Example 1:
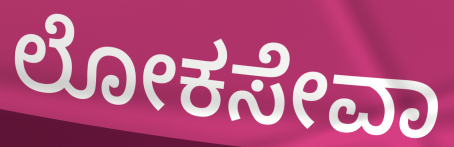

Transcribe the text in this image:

ಲೋಕಸೇವಾ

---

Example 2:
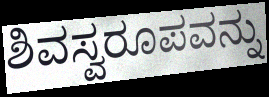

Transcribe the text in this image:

ಶಿವಸ್ವರೂಪವನ್ನು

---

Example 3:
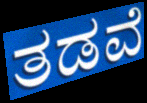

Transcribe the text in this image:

ತಡವೆ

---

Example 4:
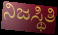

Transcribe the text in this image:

ನಿಜಸ್ಥಿತಿ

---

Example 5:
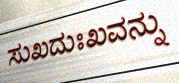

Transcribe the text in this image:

ಸುಖದುಃಖವನ್ನು